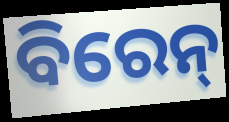
ବିରେନ୍